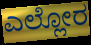
ಎಲ್ಲೋರ